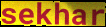
sekhar